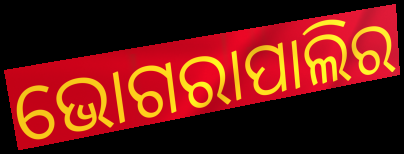
ଭୋଗରାପାଲିର